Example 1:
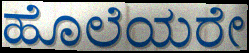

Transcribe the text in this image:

ಹೊಲೆಯರೇ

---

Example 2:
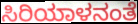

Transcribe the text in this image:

ಸಿರಿಯಾಳನಂತೆ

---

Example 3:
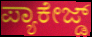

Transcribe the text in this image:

ಪ್ಯಾಕೇಜ್ಡ್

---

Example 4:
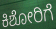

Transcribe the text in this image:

ಕಿಶೋರಿಗೆ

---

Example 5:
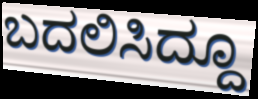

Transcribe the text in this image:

ಬದಲಿಸಿದ್ದೂ